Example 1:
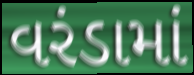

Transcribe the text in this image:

વરંડામાં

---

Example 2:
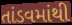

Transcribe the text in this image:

તાંડવમાંથી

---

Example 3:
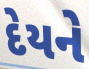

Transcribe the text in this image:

દેયને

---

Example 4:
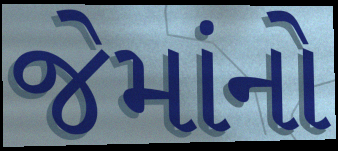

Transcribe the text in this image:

જેમાંનો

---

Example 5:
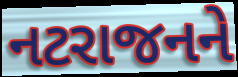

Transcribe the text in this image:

નટરાજનને